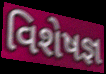
વિશેષજ્ઞ